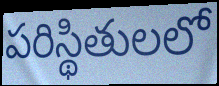
పరిస్థితులలో